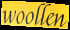
woollen